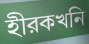
হীরকখনি